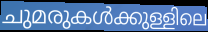
ചുമരുകൾക്കുള്ളിലെ